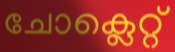
ചോക്ലെറ്റ്